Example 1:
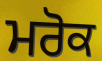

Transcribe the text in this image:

ਮਰੋਕ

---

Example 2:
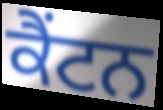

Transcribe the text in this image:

ਕੈਂਟਨ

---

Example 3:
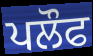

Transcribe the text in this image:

ਪਲੌਫ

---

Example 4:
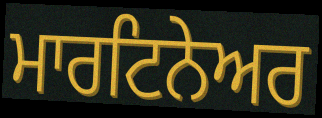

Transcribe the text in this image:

ਮਾਰਟਿਨੇਅਰ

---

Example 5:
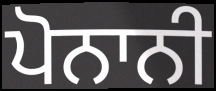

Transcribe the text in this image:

ਪੋਨਾਨੀ